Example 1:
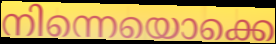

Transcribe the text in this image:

നിന്നെയൊക്കെ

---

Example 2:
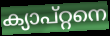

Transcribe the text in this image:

ക്യാപ്റ്റനെ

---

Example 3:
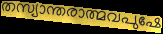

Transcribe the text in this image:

തസ്യാന്തരാത്മവപുഷേ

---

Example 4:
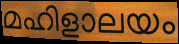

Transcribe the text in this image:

മഹിളാലയം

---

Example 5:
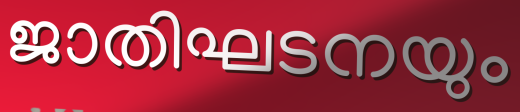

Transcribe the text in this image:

ജാതിഘടനയും